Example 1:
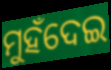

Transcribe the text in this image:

ମୁହଁଦେଇ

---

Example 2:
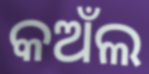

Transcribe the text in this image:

କଅଁଲ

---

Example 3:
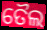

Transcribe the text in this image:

ତୈଲ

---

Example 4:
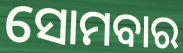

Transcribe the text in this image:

ସୋମବାର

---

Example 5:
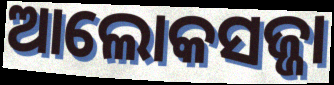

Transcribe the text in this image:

ଆଲୋକସଜ୍ଜା